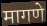
मागणे